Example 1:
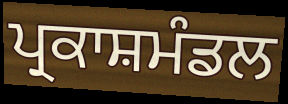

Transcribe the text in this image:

ਪ੍ਰਕਾਸ਼ਮੰਡਲ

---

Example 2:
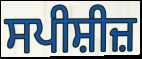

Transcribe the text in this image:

ਸਪੀਸ਼ੀਜ਼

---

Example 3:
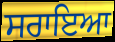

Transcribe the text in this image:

ਸਰਾਇਆ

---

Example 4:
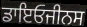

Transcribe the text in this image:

ਡਾਇਓਜੀਨਸ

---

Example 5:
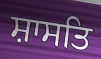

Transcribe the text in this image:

ਸ਼ਾਸਤਿ